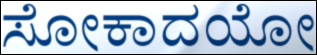
ಸೋಕಾದಯೋ